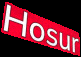
Hosur